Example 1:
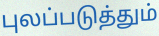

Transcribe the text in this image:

புலப்படுத்தும்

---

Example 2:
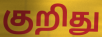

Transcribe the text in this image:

குறிது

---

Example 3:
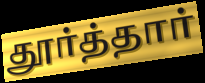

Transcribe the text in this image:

தூர்த்தார்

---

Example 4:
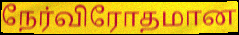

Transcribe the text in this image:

நேர்விரோதமான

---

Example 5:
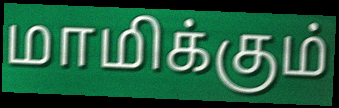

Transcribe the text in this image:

மாமிக்கும்